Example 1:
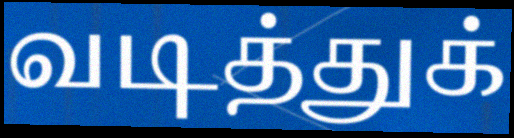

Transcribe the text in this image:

வடித்துக்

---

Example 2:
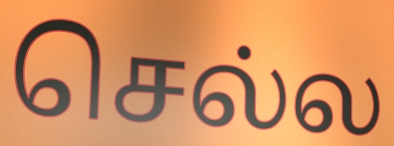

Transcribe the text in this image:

செல்ல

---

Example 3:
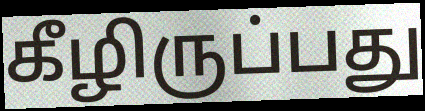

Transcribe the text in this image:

கீழிருப்பது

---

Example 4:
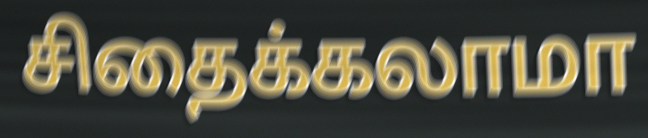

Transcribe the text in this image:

சிதைக்கலாமா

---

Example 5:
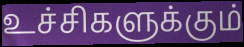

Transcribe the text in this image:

உச்சிகளுக்கும்